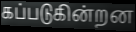
கப்படுகின்றன